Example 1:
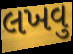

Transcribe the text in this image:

લખવુ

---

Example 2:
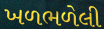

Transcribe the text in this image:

ખળભળેલી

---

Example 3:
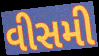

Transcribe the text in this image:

વીસમી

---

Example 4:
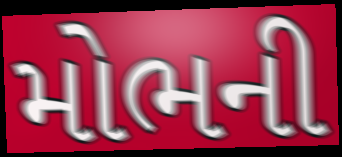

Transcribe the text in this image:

મોભની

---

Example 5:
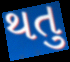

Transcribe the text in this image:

થતુ